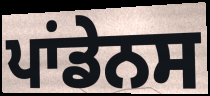
ਪਾਂਡੇਨਸ